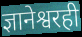
ज्ञानेश्वरही